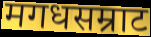
मगधसम्राट